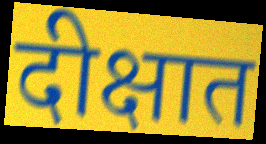
दीक्षात